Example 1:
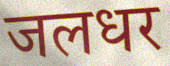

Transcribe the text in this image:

जलधर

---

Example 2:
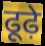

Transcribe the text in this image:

ढूढ़े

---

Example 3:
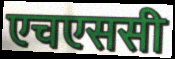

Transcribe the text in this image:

एचएससी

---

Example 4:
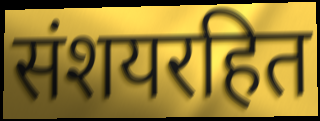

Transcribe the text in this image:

संशयरहित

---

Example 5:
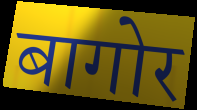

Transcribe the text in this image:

बागोर